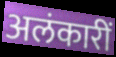
अलंकारीं